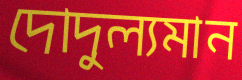
দোদুল্যমান